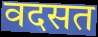
वदसत